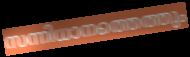
സന്നിധാനത്തെത്തും